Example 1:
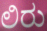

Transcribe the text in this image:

ಲಿರು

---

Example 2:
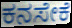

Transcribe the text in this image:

ಕನಸೇಕೆ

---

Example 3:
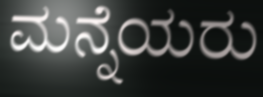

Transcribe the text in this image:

ಮನ್ನೆಯರು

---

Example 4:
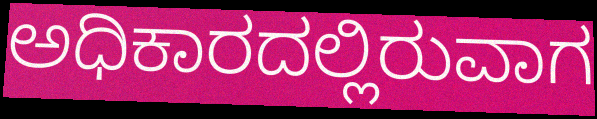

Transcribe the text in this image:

ಅಧಿಕಾರದಲ್ಲಿರುವಾಗ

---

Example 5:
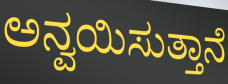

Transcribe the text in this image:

ಅನ್ವಯಿಸುತ್ತಾನೆ